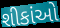
શીકાંઓ